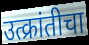
उत्क्रांतीचा